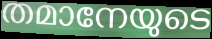
തമാനേയുടെ